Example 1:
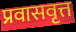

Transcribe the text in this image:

प्रवासवृत्त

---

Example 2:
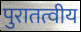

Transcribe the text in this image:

पुरातत्वीय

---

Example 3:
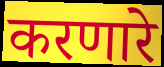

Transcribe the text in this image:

करणारे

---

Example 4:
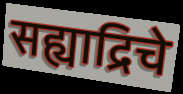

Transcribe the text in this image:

सह्याद्रिचे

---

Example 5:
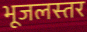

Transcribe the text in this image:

भूजलस्तर